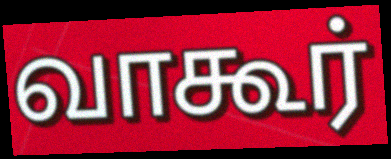
வாகூர்